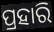
ପ୍ରହାରି